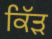
ਕਿੱੜ